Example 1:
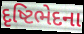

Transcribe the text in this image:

દૃષ્ટિભેદના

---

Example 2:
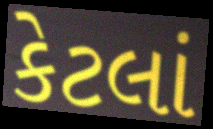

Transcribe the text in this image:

કેટલાં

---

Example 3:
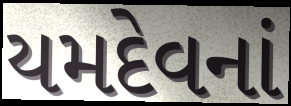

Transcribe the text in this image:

યમદેવનાં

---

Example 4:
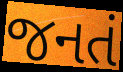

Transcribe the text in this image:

જનતં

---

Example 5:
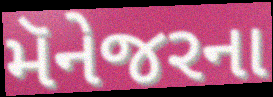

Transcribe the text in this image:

મૅનેજરના